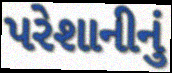
પરેશાનીનું